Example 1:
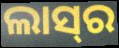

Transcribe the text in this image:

ଲାସ୍‌ର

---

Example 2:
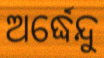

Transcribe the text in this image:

ଅର୍ଦ୍ଧେନ୍ଦୁ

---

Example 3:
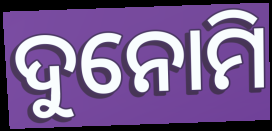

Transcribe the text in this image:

ଦୁନୋମି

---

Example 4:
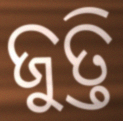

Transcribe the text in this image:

ଜୁତ୍ତି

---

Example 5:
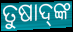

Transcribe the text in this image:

ତୁଷାଦ୍‌ଙ୍କ